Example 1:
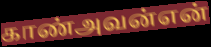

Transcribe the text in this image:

காண்அவன்என்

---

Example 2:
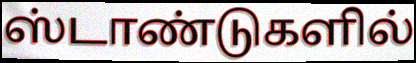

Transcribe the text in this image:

ஸ்டாண்டுகளில்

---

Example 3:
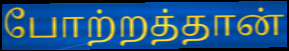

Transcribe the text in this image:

போற்றத்தான்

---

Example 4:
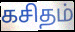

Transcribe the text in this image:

கசிதம்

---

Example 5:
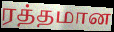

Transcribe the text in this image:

ரத்தமான